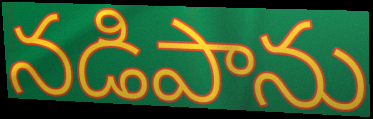
నడిపాను